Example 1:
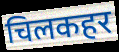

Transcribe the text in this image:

चिलकहर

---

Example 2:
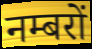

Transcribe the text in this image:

नम्बरों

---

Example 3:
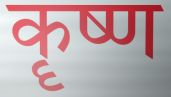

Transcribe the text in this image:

कॄष्ण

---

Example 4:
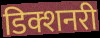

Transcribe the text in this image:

डिक्‍शनरी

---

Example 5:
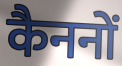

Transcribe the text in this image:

कैननों